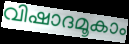
വിഷാദമൂകാം